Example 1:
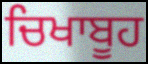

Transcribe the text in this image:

ਚਿਖਾਬੂਹ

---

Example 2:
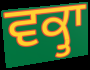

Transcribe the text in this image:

ਵਕ੍ਤਾ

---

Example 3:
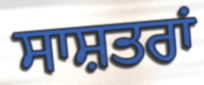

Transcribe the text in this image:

ਸਾਸ਼ਤਰਾਂ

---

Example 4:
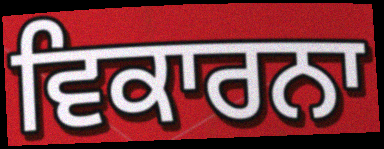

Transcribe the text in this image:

ਵਿਕਾਰਨਾ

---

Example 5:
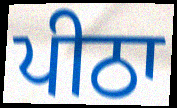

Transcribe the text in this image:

ਪੀਠਾ